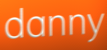
danny